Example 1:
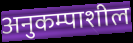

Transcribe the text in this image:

अनुकम्पाशील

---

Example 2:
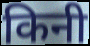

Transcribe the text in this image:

किनी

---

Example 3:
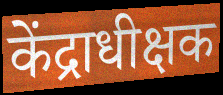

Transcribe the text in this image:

केंद्राधीक्षक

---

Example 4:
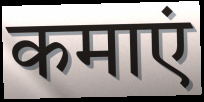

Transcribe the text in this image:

कमाएं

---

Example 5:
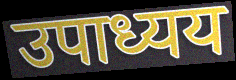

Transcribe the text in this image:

उपाध्यय